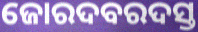
ଜୋରଦବରଦସ୍ତ